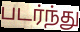
படர்ந்து